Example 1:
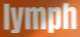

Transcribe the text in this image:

lymph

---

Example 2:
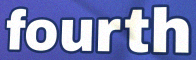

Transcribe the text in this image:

fourth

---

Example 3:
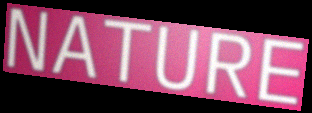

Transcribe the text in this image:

NATURE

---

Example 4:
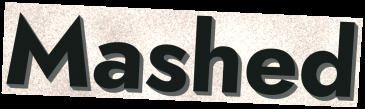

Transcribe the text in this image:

Mashed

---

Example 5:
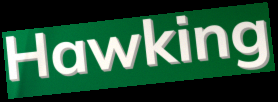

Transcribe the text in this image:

Hawking